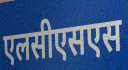
एलसीएसएस